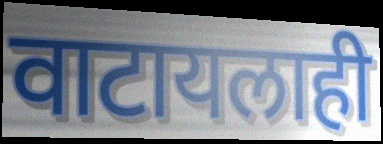
वाटायलाही